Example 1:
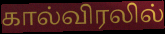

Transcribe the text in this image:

கால்விரலில்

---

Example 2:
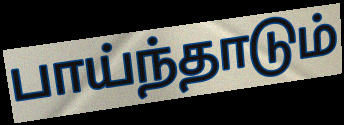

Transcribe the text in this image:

பாய்ந்தாடும்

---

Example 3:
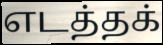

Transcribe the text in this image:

எடத்தக்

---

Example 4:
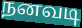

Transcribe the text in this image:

நனவடி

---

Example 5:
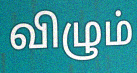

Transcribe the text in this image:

விழும்